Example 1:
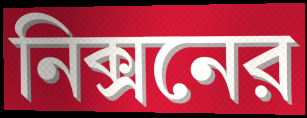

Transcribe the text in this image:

নিক্সনের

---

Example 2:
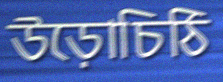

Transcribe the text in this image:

উড়োচিঠি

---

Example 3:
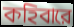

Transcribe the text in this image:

কহিবারে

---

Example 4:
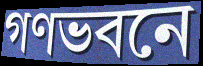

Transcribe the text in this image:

গণভবনে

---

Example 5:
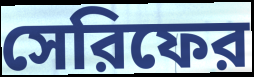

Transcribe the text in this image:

সেরিফের